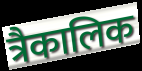
त्रैकालिक